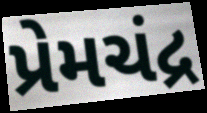
પ્રેમચંદ્ર